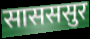
सासससुर